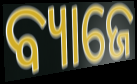
ବ୍ୟାଜେ